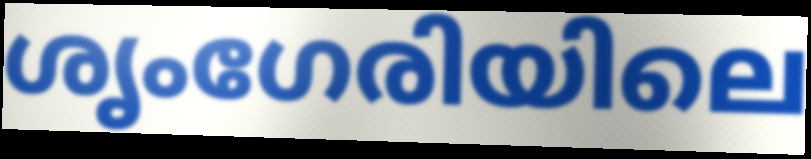
ശൃംഗേരിയിലെ